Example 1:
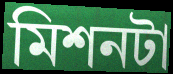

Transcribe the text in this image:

মিশনটা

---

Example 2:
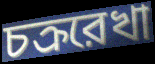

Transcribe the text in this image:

চক্ররেখা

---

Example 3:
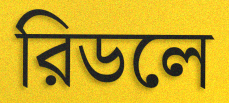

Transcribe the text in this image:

রিডলে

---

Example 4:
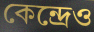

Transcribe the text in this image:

কেন্দ্রেও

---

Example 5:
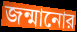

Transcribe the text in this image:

জন্মানোর